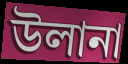
উলানা